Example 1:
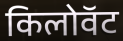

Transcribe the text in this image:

किलोवॅट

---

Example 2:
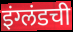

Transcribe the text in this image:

इंग्लंडची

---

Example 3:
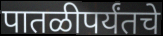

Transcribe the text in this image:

पातळीपर्यंतचे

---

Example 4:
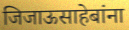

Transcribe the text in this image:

जिजाऊसाहेबांना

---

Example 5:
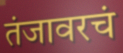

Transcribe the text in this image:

तंजावरचं